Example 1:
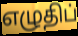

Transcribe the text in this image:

எழுதிப்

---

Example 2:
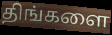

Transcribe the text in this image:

திங்களை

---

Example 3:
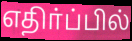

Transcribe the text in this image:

எதிர்ப்பில்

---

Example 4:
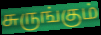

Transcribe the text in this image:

சுருங்கும்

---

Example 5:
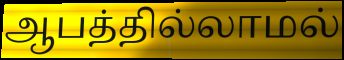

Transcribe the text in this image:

ஆபத்தில்லாமல்